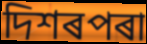
দিশৰপৰা